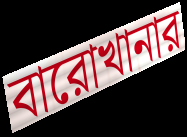
বারোখানার